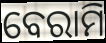
ବେରାମି